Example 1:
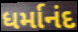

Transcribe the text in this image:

ધર્માનંદ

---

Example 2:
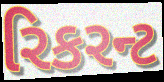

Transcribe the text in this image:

રિકરન્ટ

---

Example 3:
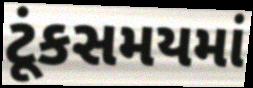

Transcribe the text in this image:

ટૂંકસમયમાં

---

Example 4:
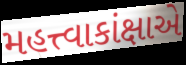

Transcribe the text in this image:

મહત્ત્વાકાંક્ષાએ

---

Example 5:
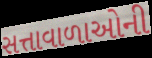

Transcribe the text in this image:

સત્તાવાળાઓની